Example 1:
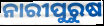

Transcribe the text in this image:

ନାରୀପୁରୁଷ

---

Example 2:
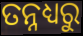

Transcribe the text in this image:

ତନ୍ନଧ୍ୟରୁ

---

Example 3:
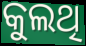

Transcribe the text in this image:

କୁଲଥି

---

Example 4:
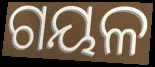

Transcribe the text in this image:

ଗୟଳ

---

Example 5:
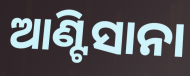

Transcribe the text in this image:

ଆଣ୍ଟିସାନା